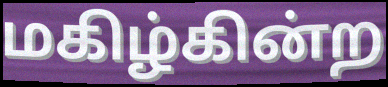
மகிழ்கின்ற